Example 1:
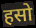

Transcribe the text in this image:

हसो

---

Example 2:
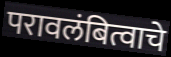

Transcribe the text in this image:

परावलंबित्वाचे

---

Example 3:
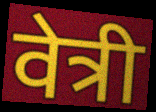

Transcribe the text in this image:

वेत्री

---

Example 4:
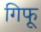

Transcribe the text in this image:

गिफू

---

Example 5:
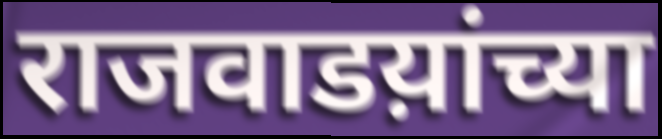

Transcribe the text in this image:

राजवाडय़ांच्या